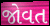
જોવત